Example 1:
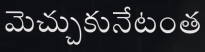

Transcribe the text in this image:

మెచ్చుకునేటంత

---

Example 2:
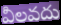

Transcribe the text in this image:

వీలవదు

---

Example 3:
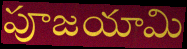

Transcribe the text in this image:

పూజయామి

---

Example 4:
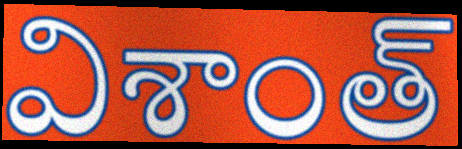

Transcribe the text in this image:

విశాంత్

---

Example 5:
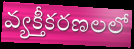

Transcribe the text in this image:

వ్యక్తీకరణలలో